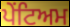
ਪੇਂਟਿਅਮ